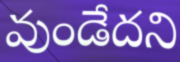
వుండేదని